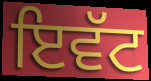
ਇਵੱਟ